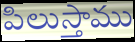
పిలుస్తాము